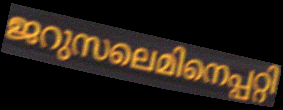
ജറുസലെമിനെപ്പറ്റി